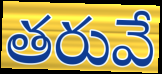
తరువే